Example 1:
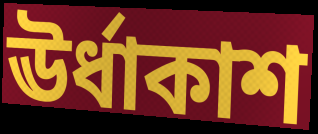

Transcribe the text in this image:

ঊর্ধাকাশ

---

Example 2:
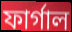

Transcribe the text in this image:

ফার্গাল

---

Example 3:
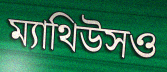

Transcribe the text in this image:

ম্যাথিউসও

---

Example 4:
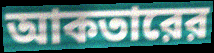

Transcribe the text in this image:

আকতারের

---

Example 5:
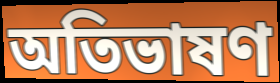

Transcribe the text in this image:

অতিভাষণ